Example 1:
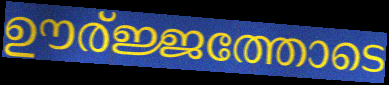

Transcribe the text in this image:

ഊര്ജ്ജത്തോടെ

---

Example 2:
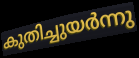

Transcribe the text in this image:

കുതിച്ചുയർന്നു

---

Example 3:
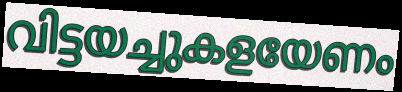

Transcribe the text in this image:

വിട്ടയച്ചുകളയേണം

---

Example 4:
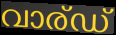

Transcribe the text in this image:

വാര്ഡ്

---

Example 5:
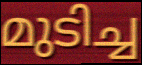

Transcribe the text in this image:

മുടിച്ച